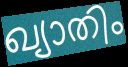
ഖ്യാതിം